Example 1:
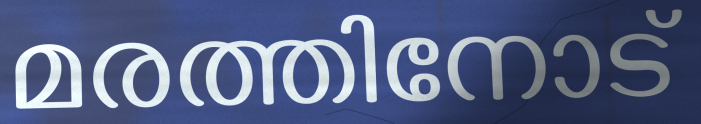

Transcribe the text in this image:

മരത്തിനോട്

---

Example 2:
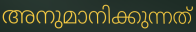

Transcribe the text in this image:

അനുമാനിക്കുന്നത്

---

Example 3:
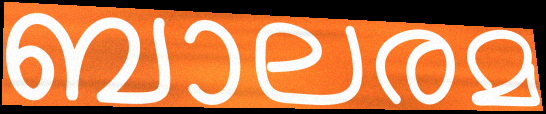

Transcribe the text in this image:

ബാലരമ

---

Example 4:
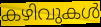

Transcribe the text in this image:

കഴിവുകൾ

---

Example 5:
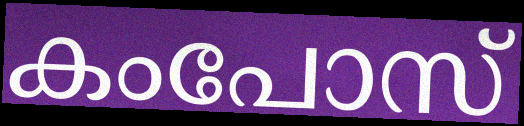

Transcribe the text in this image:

കംപോസ്